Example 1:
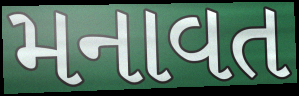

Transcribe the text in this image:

મનાવત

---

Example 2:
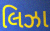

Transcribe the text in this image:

લિઝા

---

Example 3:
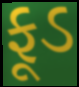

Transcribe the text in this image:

ફૂડ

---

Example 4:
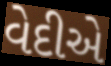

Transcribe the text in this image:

વેદીએ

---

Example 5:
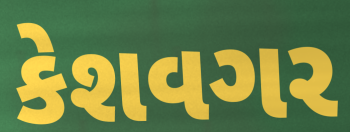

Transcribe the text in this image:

કેશવગર